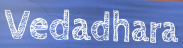
Vedadhara